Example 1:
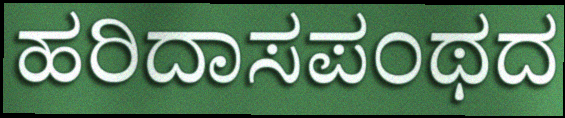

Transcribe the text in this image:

ಹರಿದಾಸಪಂಥದ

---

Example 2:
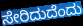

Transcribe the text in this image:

ಸೇರಿದುದೆಂದು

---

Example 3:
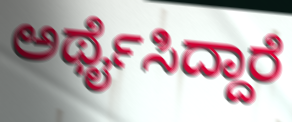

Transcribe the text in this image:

ಅರ್ಥೈಸಿದ್ದಾರೆ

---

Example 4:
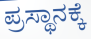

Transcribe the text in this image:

ಪ್ರಸ್ಥಾನಕ್ಕೆ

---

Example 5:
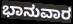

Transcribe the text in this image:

ಭಾನುವಾರ